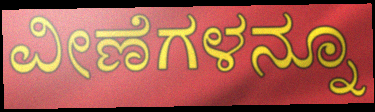
ವೀಣೆಗಳನ್ನೂ